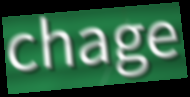
chage